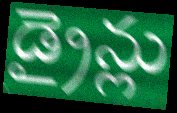
డ్రైన్లు